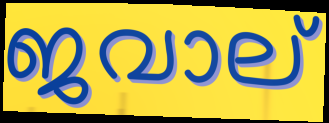
ജവാല്